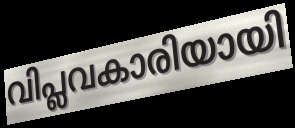
വിപ്ലവകാരിയായി